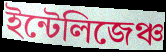
ইন্টেলিজেঞ্চ